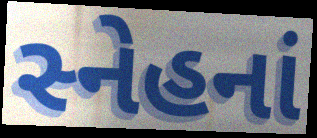
સ્નેહનાં